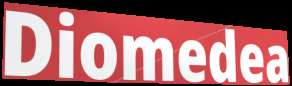
Diomedea